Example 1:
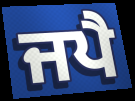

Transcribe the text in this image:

ਜਪੈ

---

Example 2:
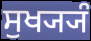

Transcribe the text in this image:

ਸੁਖ੍ਯ੍ਯੰ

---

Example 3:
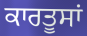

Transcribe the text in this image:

ਕਾਰਤੂਸਾਂ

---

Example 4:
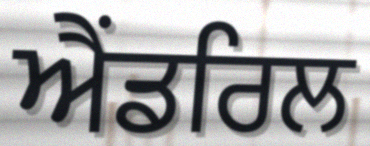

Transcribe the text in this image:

ਐਂਡਰਿਲ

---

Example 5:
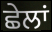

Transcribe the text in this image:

ਛੇਲਾਂ